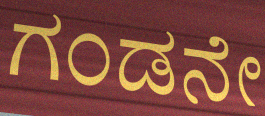
ಗಂಡನೇ